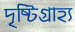
দৃষ্টিগ্রাহ্য